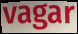
vagar